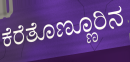
ಕೆರೆತೊಣ್ಣೂರಿನ